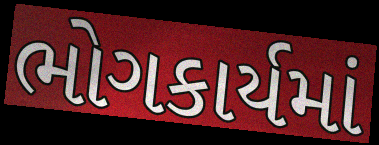
ભોગકાર્યમાં